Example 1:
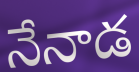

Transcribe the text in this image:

నేనాడ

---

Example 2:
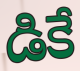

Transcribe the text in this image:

డికే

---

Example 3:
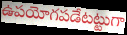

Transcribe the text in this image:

ఉపయోగపడేటట్టుగా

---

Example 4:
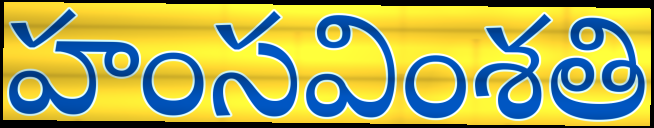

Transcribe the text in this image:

హంసవింశతి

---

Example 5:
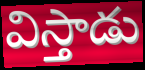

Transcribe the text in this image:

విస్తాడు